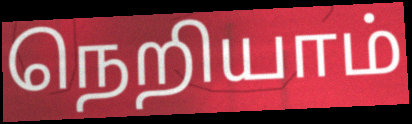
நெறியாம்